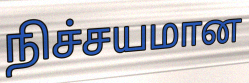
நிச்சயமான